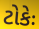
ટોકેઃ